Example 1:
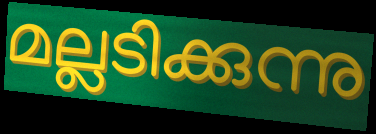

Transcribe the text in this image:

മല്ലടിക്കുന്നു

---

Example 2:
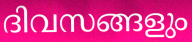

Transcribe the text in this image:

ദിവസങ്ങളും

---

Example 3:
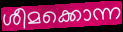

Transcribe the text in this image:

ശീമക്കൊന്ന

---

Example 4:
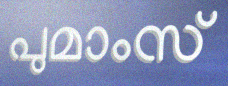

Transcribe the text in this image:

പുമാംസ്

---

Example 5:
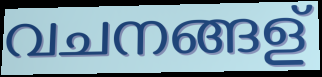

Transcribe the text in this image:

വചനങ്ങള്